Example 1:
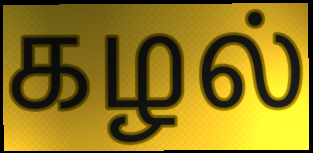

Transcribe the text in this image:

கழல்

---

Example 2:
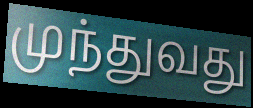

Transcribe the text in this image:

முந்துவது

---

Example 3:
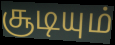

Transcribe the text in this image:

சூடியும்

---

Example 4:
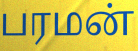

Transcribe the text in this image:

பரமன்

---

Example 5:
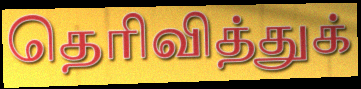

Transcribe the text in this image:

தெரிவித்துக்